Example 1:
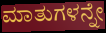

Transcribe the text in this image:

ಮಾತುಗಳನ್ನೇ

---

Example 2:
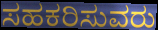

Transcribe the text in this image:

ಸಹಕರಿಸುವರು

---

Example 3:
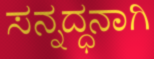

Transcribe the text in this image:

ಸನ್ನದ್ಧನಾಗಿ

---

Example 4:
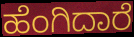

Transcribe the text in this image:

ಹೆಂಗಿದಾರೆ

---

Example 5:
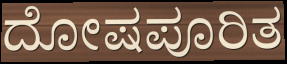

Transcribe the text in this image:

ದೋಷಪೂರಿತ